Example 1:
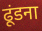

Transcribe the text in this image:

ढूंडना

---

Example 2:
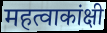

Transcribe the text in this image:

महत्‍वाकांक्षी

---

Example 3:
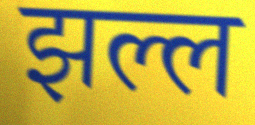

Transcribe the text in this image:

झल्ल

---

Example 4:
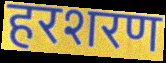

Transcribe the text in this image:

हरशरण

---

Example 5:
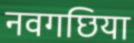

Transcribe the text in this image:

नवगछिया